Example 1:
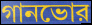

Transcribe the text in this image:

গানভোর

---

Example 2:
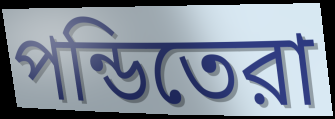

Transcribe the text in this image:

পন্ডিতেরা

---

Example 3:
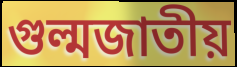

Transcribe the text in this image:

গুল্মজাতীয়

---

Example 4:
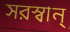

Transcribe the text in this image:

সরস্বান্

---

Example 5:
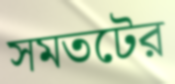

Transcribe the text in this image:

সমতটের